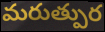
మరుత్పుర